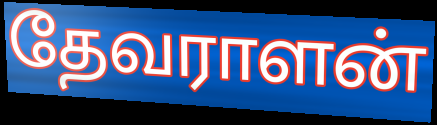
தேவராளன்